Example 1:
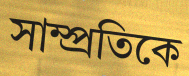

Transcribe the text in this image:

সাম্প্রতিকে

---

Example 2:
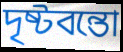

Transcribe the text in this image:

দৃষ্টবন্তো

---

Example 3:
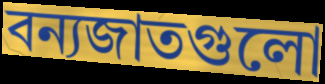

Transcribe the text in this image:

বন্যজাতগুলো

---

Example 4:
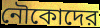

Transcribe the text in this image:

নৌকোদের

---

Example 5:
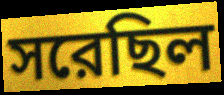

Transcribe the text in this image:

সরেছিল